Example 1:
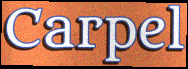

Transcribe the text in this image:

Carpel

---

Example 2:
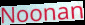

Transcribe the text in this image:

Noonan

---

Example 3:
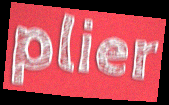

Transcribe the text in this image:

plier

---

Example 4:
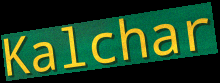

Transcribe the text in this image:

Kalchar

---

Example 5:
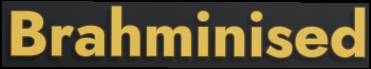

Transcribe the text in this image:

Brahminised